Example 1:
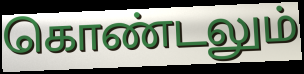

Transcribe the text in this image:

கொண்டலும்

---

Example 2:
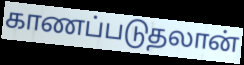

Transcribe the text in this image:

காணப்படுதலான்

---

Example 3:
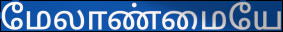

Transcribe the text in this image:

மேலாண்மையே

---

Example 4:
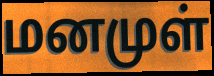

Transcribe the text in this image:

மனமுள்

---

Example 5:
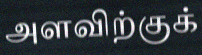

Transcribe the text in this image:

அளவிற்குக்